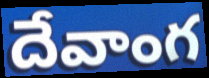
దేవాంగ